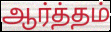
ஆர்த்தம்